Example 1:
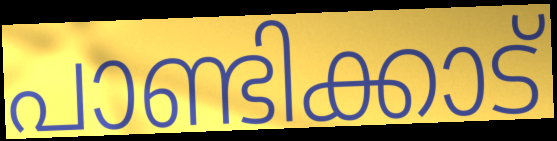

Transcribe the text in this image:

പാണ്ടിക്കാട്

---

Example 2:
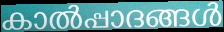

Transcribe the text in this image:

കാൽപ്പാദങ്ങൾ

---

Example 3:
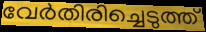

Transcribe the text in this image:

വേർതിരിച്ചെടുത്ത്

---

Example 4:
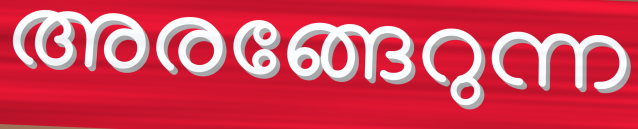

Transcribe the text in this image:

അരങ്ങേറുന്ന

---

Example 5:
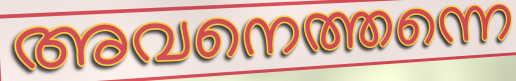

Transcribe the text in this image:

അവനെത്തന്നെ